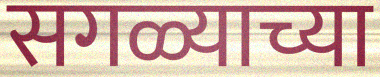
सगळ्याच्या